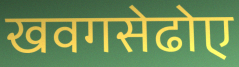
खवगसेढोए